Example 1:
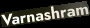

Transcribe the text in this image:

Varnashram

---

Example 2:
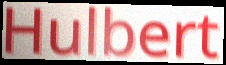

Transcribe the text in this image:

Hulbert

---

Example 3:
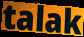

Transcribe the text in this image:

talak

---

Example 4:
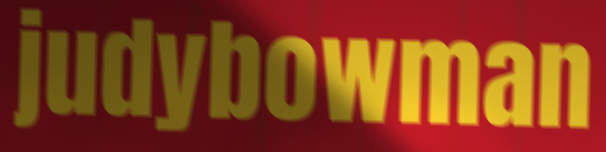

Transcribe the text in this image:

judybowman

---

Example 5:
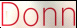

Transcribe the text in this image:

Donn